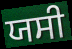
ਯਸੀ